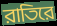
রাতিরে